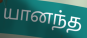
யானந்த